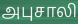
அபுசாலி